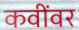
कवींवर